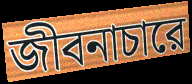
জীবনাচারে